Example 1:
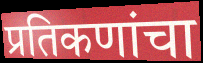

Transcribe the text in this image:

प्रतिकणांचा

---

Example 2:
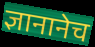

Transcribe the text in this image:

ज्ञानानेच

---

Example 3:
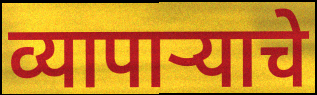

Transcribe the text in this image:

व्यापाऱ्याचे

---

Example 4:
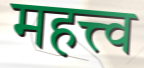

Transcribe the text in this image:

महत्त्व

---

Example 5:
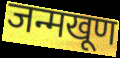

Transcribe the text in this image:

जन्मखूण